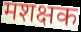
मशक्षक